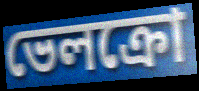
ভেলক্রো